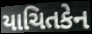
યાચિતકેન